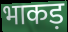
भाकड़